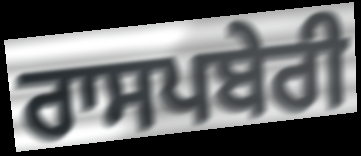
ਰਾਸਪਬੇਰੀ